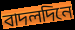
বাদলদিনে